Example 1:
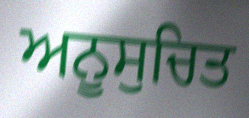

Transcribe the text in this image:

ਅਨੂਸੁਚਿਤ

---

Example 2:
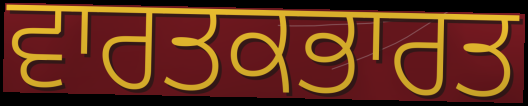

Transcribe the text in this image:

ਵਾਰਤਕਭਾਰਤ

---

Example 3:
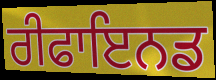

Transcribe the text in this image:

ਰੀਫਾਇਨਡ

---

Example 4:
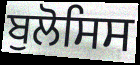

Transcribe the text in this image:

ਬੁਲੋਸਿਸ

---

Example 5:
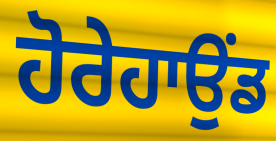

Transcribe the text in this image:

ਹੋਰੇਹਾਉਂਡ